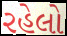
રહેલો